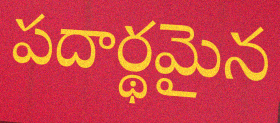
పదార్థమైన